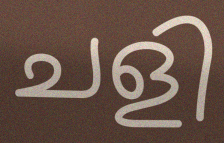
ചളി